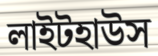
লাইটহাউস